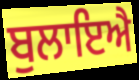
ਬੁਲਾਇਐ